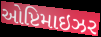
ઓપ્ટિમાઇઝર